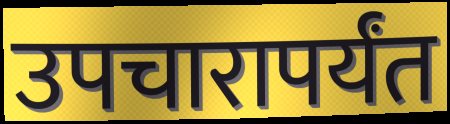
उपचारापर्यंत